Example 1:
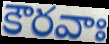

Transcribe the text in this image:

కౌరవాః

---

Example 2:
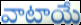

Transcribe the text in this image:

వాటాయే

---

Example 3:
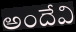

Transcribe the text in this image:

అందేవి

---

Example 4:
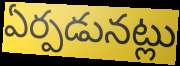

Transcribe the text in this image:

ఏర్పడునట్లు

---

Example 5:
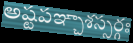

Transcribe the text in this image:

అష్టపఞ్చాశస్సర్గః